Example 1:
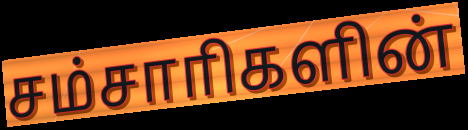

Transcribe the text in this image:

சம்சாரிகளின்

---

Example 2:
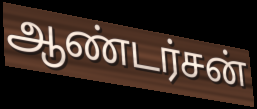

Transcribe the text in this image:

ஆண்டர்சன்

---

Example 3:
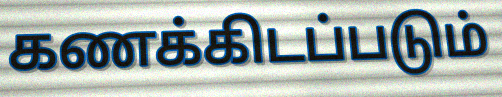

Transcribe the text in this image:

கணக்கிடப்படும்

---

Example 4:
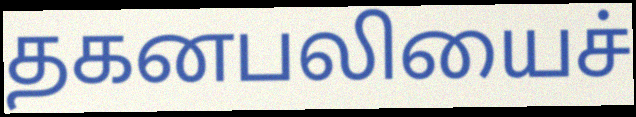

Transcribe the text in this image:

தகனபலியைச்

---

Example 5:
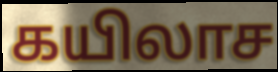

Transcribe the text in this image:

கயிலாச